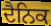
ਦੈਨਿਕ